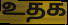
உதக